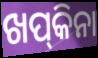
ଖପ୍‍କିନା